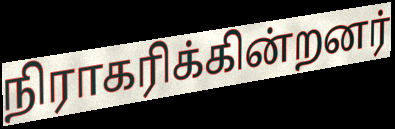
நிராகரிக்கின்றனர்